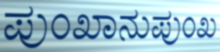
ಪುಂಖಾನುಪುಂಖ